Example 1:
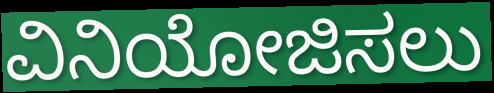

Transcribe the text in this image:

ವಿನಿಯೋಜಿಸಲು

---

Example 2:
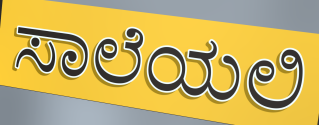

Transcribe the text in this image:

ಸಾಲೆಯಲಿ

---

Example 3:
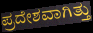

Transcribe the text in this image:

ಪ್ರದೇಶವಾಗಿತ್ತು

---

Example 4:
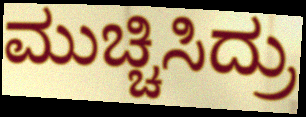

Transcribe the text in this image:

ಮುಚ್ಚಿಸಿದ್ರು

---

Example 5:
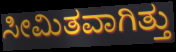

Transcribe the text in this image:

ಸೀಮಿತವಾಗಿತ್ತು